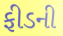
ફીડની